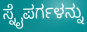
ಸ್ನೈಪರ್ಗಳನ್ನು